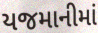
યજમાનીમાં